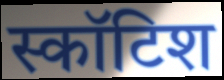
स्कॉटिश